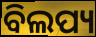
ବିଲପ୍ୟ